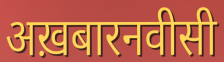
अख़बारनवीसी